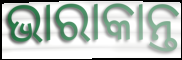
ଭାରାକାନ୍ତ